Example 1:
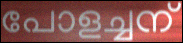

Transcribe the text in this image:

പോളച്ചന്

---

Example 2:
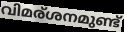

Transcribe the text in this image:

വിമര്ശനമുണ്ട്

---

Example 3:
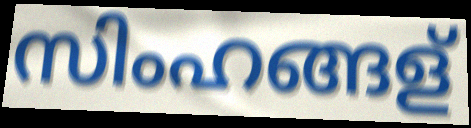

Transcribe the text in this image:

സിംഹങ്ങള്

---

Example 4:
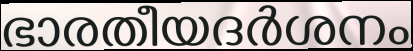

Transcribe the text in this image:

ഭാരതീയദർശനം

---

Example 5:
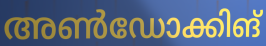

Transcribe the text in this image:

അൺഡോക്കിങ്